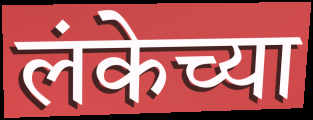
लंकेच्या